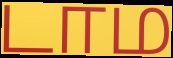
டாம